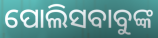
ପୋଲିସବାବୁଙ୍କ